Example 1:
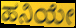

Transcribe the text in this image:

ಹನಿಯೇ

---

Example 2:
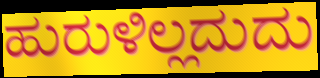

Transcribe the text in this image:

ಹುರುಳಿಲ್ಲದುದು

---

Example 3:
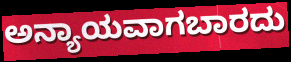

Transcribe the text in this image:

ಅನ್ಯಾಯವಾಗಬಾರದು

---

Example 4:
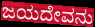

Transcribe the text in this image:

ಜಯದೇವನು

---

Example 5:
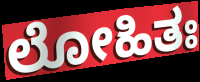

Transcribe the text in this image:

ಲೋಹಿತಃ